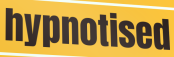
hypnotised